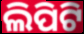
ଲିପିଟି